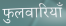
फुलवारियाँ